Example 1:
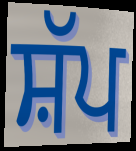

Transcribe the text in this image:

ਸ਼ੱਪ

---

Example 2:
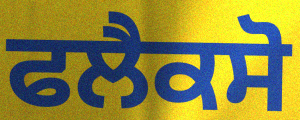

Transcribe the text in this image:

ਫਲੈਕਸੋ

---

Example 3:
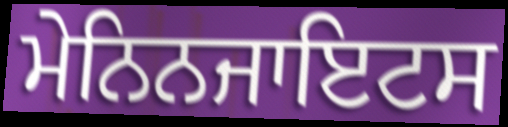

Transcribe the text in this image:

ਮੇਨਿਨਜਾਇਟਸ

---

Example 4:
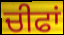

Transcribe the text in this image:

ਚੀਫਾਂ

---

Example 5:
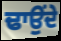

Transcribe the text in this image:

ਢਾਉਂਦੇ